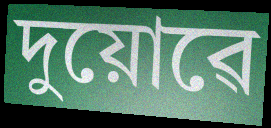
দুয়োৱে